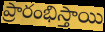
ప్రారంభిస్తాయి